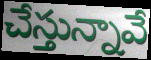
చేస్తున్నావే